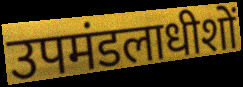
उपमंडलाधीशों